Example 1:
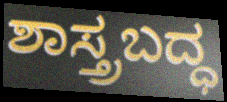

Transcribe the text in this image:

ಶಾಸ್ತ್ರಬದ್ಧ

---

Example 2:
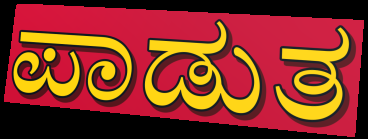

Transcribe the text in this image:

ಪಾಡುತ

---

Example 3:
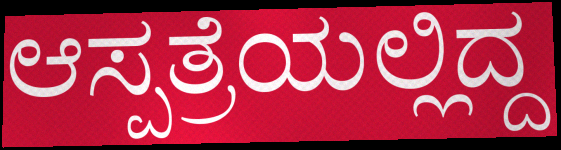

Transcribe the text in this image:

ಆಸ್ಪತ್ರೆಯಲ್ಲಿದ್ದ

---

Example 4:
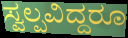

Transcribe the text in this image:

ಸ್ವಲ್ಪವಿದ್ದರೂ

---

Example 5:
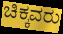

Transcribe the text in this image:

ಚಿಕ್ಕವರು